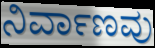
ನಿರ್ವಾಣವು